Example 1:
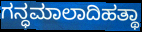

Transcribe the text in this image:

ಗನ್ಧಮಾಲಾದಿಹತ್ಥಾ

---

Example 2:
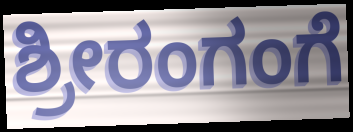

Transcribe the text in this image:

ಶ್ರೀರಂಗಂಗೆ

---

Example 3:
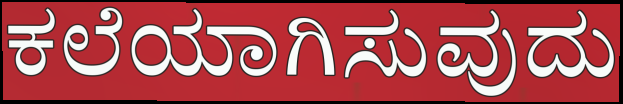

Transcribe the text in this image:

ಕಲೆಯಾಗಿಸುವುದು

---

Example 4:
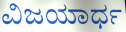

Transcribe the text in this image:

ವಿಜಯಾರ್ಧ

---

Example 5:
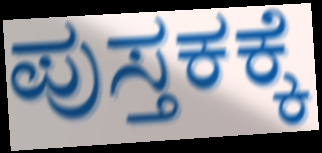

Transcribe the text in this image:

ಪುಸ್ತಕಕ್ಕೆ